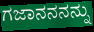
ಗಜಾನನನನ್ನು